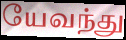
யேவந்து